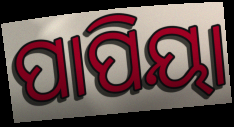
ପାପିୟା